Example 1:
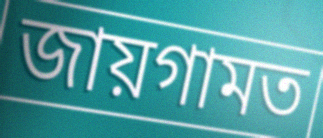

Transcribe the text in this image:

জায়গামত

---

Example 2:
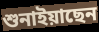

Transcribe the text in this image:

শুনাইয়াছেন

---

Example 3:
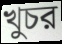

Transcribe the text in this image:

খুচর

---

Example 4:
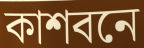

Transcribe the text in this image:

কাশবনে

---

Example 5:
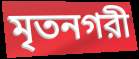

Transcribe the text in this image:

মৃতনগরী